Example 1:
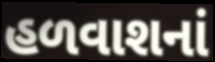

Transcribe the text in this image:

હળવાશનાં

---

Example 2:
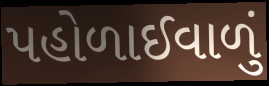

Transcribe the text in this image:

પહોળાઈવાળું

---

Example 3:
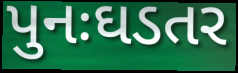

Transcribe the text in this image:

પુનઃઘડતર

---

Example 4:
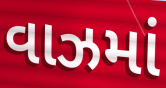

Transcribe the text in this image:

વાઝમાં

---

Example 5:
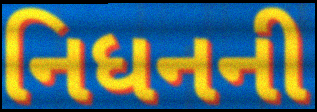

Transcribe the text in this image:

નિધનની